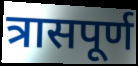
त्रासपूर्ण